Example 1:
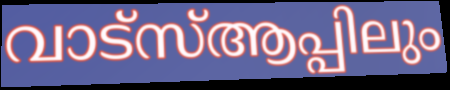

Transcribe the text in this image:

വാട്സ്ആപ്പിലും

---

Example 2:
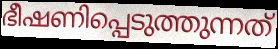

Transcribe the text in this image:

ഭീഷണിപ്പെടുത്തുന്നത്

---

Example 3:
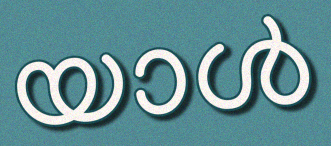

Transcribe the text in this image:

യാൾ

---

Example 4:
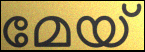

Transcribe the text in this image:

മേയ്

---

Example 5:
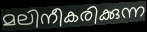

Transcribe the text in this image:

മലിനീകരിക്കുന്ന